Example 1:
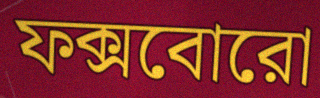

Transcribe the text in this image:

ফক্সবোরো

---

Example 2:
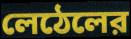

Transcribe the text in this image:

লেঠেলের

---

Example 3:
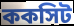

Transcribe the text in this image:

ককসিট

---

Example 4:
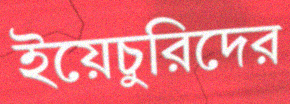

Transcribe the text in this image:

ইয়েচুরিদের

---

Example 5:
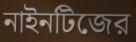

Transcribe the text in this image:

নাইনটিজের